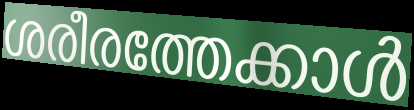
ശരീരത്തേക്കാൾ